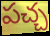
పచ్చ